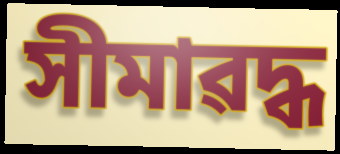
সীমাৱদ্ধ